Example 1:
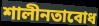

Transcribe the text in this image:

শালীনতাবোধ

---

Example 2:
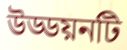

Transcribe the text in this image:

উড্ডয়নটি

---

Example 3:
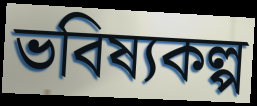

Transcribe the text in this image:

ভবিষ্যকল্প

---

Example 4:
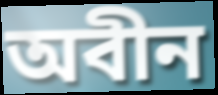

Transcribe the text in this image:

অবীন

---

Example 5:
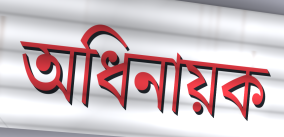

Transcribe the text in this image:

অধিনায়ক